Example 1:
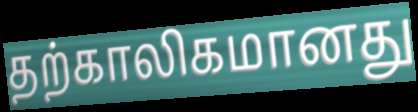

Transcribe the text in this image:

தற்காலிகமானது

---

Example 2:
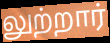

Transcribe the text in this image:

லுற்றார்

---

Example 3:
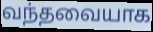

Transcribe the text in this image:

வந்தவையாக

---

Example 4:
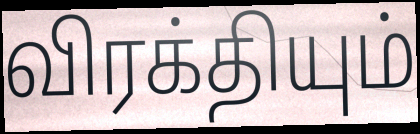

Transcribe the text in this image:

விரக்தியும்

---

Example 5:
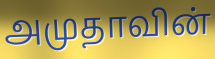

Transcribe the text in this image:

அமுதாவின்